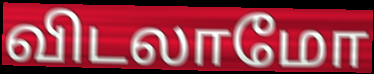
விடலாமோ